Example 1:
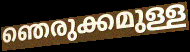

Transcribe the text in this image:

ഞെരുക്കമുള്ള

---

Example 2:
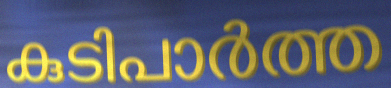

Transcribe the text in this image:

കുടിപാർത്ത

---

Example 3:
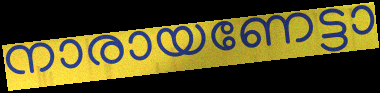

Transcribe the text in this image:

നാരായണേട്ടാ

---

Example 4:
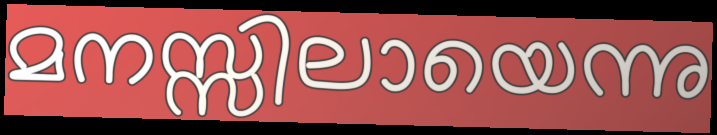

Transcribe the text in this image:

മനസ്സിലായെന്നു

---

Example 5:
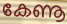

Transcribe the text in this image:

കേണൂ